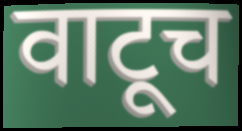
वाटूच